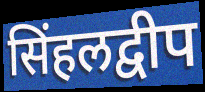
सिंहलद्वीप